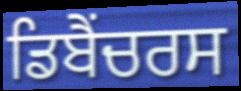
ਡਿਬੈਂਚਰਸ